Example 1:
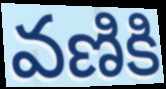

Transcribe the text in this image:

వణికి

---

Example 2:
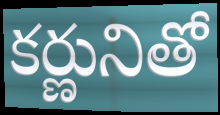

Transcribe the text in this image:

కర్ణునితో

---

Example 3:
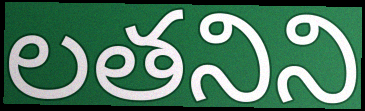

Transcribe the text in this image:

లతనిని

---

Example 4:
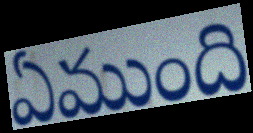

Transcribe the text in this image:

ఏముంది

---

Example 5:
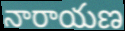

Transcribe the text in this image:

నారాయణ